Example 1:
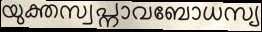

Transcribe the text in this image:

യുക്തസ്വപ്നാവബോധസ്യ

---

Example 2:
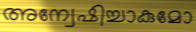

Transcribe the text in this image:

അന്വേഷിച്ചാകുമോ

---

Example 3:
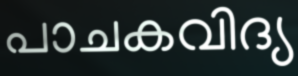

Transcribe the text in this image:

പാചകവിദ്യ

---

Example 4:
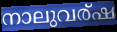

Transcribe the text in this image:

നാലുവര്ഷ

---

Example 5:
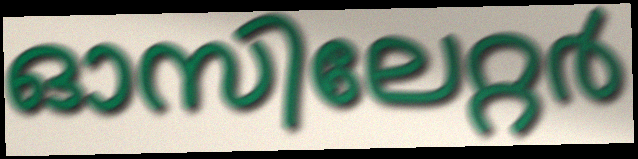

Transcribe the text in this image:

ഓസിലേറ്റർ